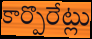
కార్పొరేట్లు